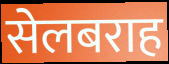
सेलबराह